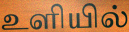
உளியில்